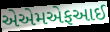
એએમએફઆઈ